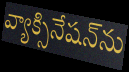
వ్యాక్సినేషన్‌ను